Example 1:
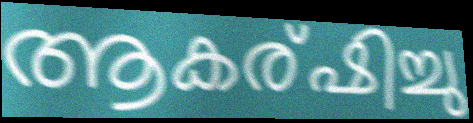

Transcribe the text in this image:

ആകര്ഷിച്ചു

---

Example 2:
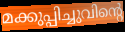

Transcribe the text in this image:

മക്കുപ്പിച്ചുവിന്റെ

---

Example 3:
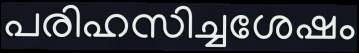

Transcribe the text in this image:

പരിഹസിച്ചശേഷം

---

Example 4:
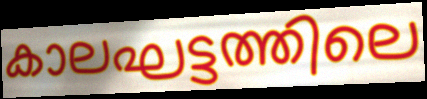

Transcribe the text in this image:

കാലഘട്ടത്തിലെ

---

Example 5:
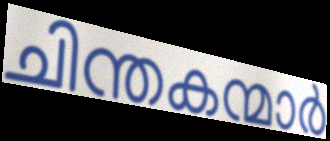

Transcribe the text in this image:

ചിന്തകന്മാർ